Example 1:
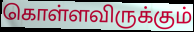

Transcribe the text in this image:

கொள்ளவிருக்கும்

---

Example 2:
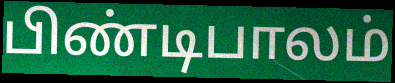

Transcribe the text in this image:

பிண்டிபாலம்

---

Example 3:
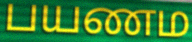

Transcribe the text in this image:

பயணம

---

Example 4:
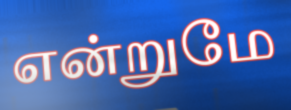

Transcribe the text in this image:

என்றுமே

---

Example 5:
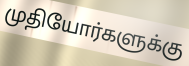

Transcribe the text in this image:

முதியோர்களுக்கு